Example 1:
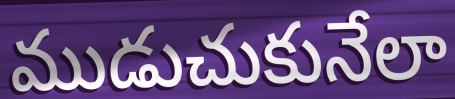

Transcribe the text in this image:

ముడుచుకునేలా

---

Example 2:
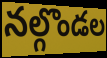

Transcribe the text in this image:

నల్గొండల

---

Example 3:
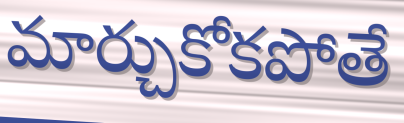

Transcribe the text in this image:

మార్చుకోకపోతే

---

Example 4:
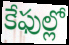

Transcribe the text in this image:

కేఫుల్లో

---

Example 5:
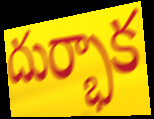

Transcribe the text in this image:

దుర్భాక